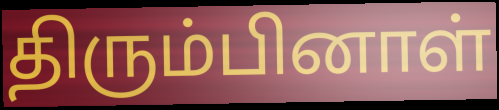
திரும்பினாள்